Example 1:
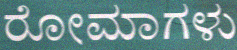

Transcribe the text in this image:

ರೋಮಾಗಳು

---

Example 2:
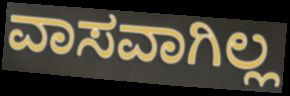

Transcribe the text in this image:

ವಾಸವಾಗಿಲ್ಲ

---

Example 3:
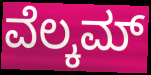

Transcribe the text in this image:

ವೆಲ್ಕಮ್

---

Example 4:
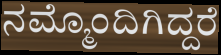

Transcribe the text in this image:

ನಮ್ಮೊಂದಿಗಿದ್ದರೆ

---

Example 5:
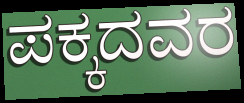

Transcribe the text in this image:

ಪಕ್ಕದವರ